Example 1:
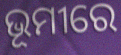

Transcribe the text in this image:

ଭୂମୀରେ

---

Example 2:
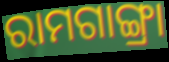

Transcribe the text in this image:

ରାମଗାଙ୍ଗ୍ରା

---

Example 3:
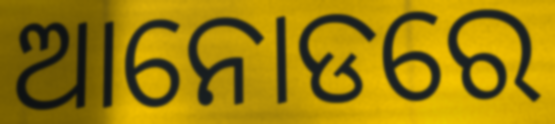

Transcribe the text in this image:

ଆନୋଡରେ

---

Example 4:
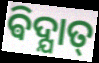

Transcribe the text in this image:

ଵିଦ୍ଯାତ୍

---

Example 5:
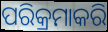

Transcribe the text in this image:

ପରିକ୍ରମାକରି